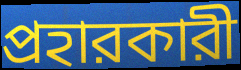
প্রহারকারী